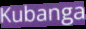
Kubanga